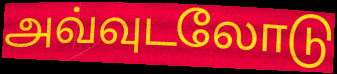
அவ்வுடலோடு